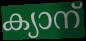
ക്യാന്